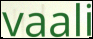
vaali